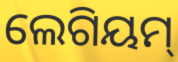
ଲେଗିୟମ୍